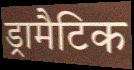
ड्रामैटिक